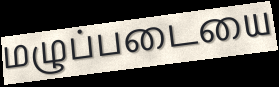
மழுப்படையை